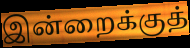
இன்றைக்குத்